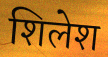
शिलेश